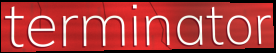
terminator